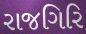
રાજગિરિ